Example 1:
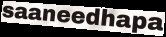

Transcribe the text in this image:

saaneedhapa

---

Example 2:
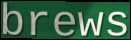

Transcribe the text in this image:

brews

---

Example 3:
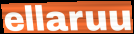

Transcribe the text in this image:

ellaruu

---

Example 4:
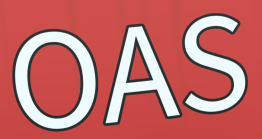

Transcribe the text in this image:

OAS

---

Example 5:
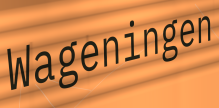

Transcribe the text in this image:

Wageningen